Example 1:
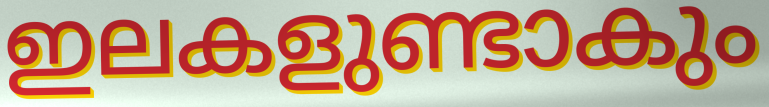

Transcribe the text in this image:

ഇലകളുണ്ടാകും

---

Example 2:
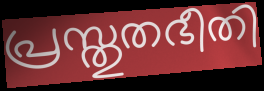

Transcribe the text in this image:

പ്രസ്തുതഭീതി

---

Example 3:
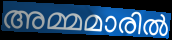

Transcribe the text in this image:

അമ്മമാരിൽ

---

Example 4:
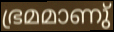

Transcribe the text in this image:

ഭ്രമമാണു്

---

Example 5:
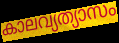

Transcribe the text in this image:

കാലവ്യത്യാസം